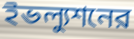
ইভল্যুশনের